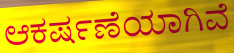
ಆಕರ್ಷಣೆಯಾಗಿವೆ